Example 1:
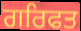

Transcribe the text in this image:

ਗਰਿਫਤ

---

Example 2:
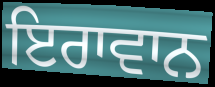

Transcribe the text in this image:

ਇਰਾਵਾਨ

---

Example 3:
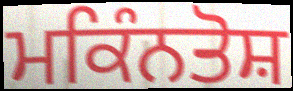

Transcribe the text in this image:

ਮਕਿੰਨਤੋਸ਼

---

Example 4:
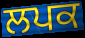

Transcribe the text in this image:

ਲਪਕ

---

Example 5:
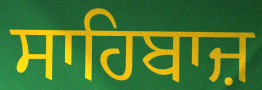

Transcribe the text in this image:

ਸਾਹਿਬਾਜ਼